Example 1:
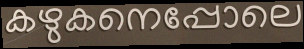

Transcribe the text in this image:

കഴുകനെപ്പോലെ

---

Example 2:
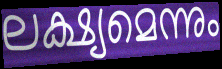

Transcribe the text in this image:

ലക്ഷ്യമെന്നും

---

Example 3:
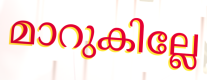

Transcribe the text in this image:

മാറുകില്ലേ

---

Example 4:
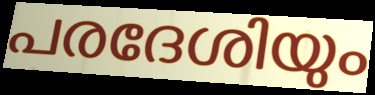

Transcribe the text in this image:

പരദേശിയും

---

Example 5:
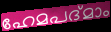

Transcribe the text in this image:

ഹേമപദ്മാം